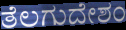
ತೆಲಗುದೇಶಂ